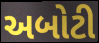
અબોટી